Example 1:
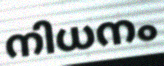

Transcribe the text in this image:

നിധനം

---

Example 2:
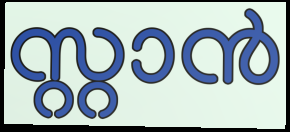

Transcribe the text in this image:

സ്റ്റാൻ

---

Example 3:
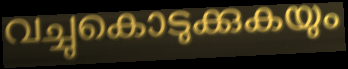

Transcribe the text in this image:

വച്ചുകൊടുക്കുകയും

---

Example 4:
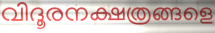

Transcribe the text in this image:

വിദൂരനക്ഷത്രങ്ങളെ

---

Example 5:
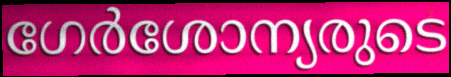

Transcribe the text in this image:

ഗേർശോന്യരുടെ